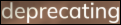
deprecating